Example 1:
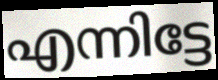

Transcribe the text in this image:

എന്നിട്ടേ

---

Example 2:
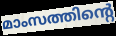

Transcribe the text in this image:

മാംസത്തിന്റെ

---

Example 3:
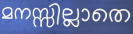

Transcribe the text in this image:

മനസ്സില്ലാതെ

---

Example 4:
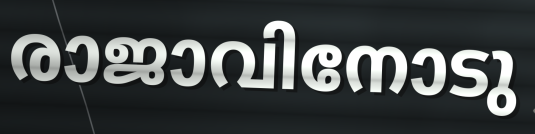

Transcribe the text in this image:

രാജാവിനോടു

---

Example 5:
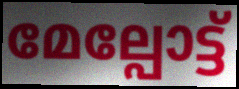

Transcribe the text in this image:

മേല്പോട്ട്